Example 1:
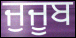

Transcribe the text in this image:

ਜੁਜੂਬ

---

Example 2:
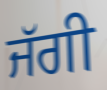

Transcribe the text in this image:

ਜੱਗੀ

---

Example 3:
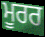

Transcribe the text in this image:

ਮੂਰਰ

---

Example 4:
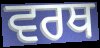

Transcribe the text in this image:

ਵਰਥ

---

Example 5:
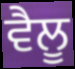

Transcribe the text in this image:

ਵੈਲੂ